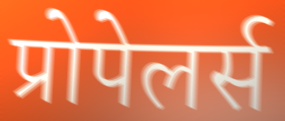
प्रोपेलर्स